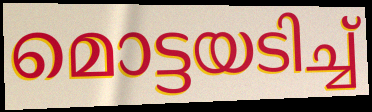
മൊട്ടയടിച്ച്